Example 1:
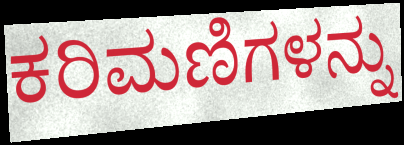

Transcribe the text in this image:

ಕರಿಮಣಿಗಳನ್ನು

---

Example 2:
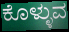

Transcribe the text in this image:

ಕೊಳ್ಳುವ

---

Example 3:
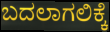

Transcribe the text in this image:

ಬದಲಾಗಲಿಕ್ಕೆ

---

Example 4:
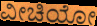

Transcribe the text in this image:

ವೀಚಿಯೋ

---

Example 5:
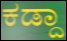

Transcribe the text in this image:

ಕಡ್ದಾ